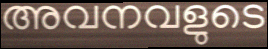
അവനവളുടെ